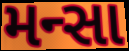
મન્સા